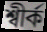
শ্বীৰ্ক